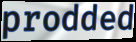
prodded